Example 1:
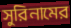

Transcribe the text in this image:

সুরিনামের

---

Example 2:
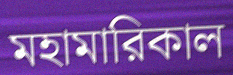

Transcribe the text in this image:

মহামারিকাল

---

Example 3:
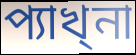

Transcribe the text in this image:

প্যাখ্না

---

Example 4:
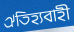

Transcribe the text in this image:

ঐতিহ্যবাহী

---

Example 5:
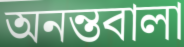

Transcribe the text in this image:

অনন্তবালা